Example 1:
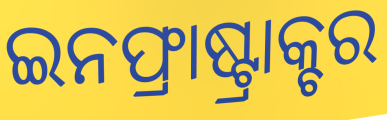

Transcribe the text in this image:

ଇନଫ୍ରାଷ୍ଟ୍ରାକ୍ଚର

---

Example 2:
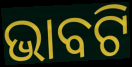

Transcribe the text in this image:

ଭାବଟି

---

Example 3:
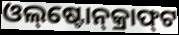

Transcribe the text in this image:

ଓଲ୍‌ଷ୍ଟୋନ୍‌କ୍ରାଫ୍‌ଟ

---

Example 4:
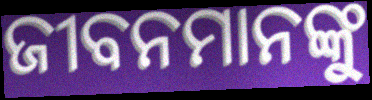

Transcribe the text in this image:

ଜୀବନମାନଙ୍କୁ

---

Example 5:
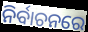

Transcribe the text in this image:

ନିର୍ବାଚନରେ